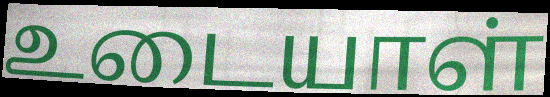
உடையாள்